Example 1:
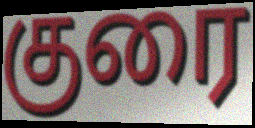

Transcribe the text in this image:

குரை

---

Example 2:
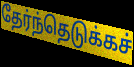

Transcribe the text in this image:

தேர்ந்தெடுக்கச்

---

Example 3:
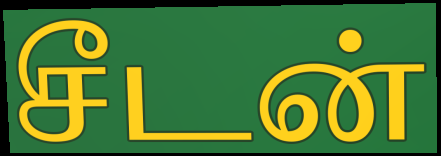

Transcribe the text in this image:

சீடன்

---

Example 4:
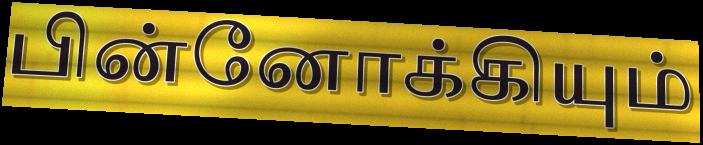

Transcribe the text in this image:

பின்னோக்கியும்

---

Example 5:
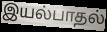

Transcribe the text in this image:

இயல்பாதல்